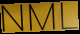
NML